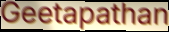
Geetapathan